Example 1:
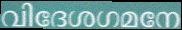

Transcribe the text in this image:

വിദേശഗമനേ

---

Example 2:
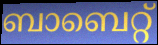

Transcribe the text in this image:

ബാബെറ്റ്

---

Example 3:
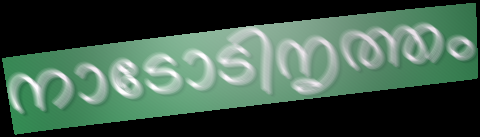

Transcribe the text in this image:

നാടോടിനൃത്തം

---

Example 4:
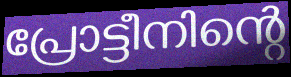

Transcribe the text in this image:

പ്രോട്ടീനിന്റെ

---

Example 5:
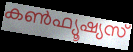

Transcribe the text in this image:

കൺഫ്യൂഷ്യസ്